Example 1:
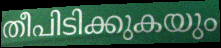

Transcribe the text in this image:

തീപിടിക്കുകയും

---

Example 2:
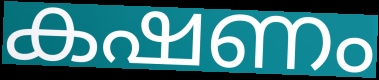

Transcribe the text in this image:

കഷണം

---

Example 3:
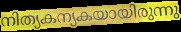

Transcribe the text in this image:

നിത്യകന്യകയായിരുന്നു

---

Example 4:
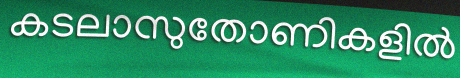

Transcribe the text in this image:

കടലാസുതോണികളിൽ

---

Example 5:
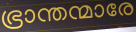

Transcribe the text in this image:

ഭ്രാന്തന്മാരേ